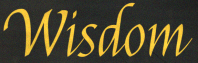
Wisdom